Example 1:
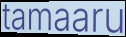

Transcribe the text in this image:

tamaaru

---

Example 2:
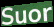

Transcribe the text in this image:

Suor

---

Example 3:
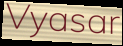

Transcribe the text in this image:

Vyasar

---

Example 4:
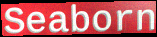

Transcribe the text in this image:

Seaborn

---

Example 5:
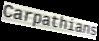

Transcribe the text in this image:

Carpathians